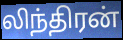
லிந்திரன்